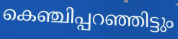
കെഞ്ചിപ്പറഞ്ഞിട്ടും